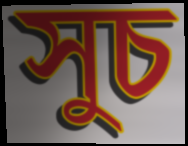
সুচ